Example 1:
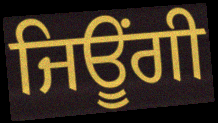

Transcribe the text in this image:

ਜਿਊਂਗੀ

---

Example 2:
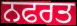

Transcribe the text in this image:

ਨਫਰਤ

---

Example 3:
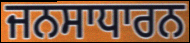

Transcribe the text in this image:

ਜਨਸਾਧਾਰਨ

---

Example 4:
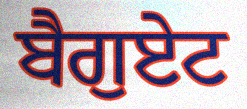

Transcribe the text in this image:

ਬੈਗੁਏਟ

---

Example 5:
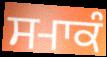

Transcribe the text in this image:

ਸ੍ਮਾਕੰ